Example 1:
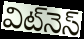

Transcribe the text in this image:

విట్‌నెస్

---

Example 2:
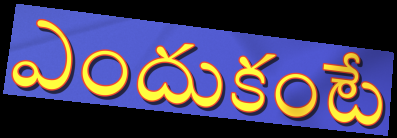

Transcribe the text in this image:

ఎందుకంటే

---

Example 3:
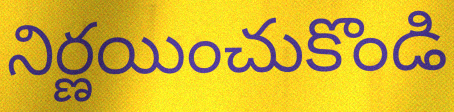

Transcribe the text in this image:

నిర్ణయించుకొండి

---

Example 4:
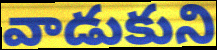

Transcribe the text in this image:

వాడుకుని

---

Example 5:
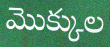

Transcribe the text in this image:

మొక్కుల